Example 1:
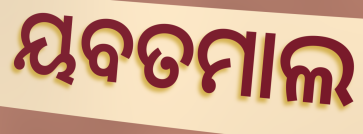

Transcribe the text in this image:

ୟବତମାଲ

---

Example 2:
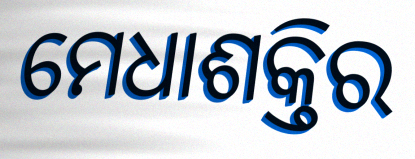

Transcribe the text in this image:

ମେଧାଶକ୍ତିର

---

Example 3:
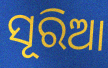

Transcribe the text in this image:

ସୂରିଆ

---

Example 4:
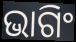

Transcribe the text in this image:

ଭାଗିଂ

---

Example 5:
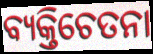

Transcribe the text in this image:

ବ୍ୟକ୍ତିଚେତନା